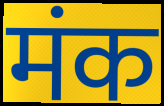
मंक